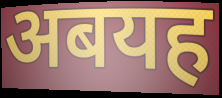
अबयह